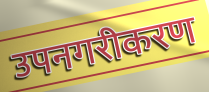
उपनगरीकरण